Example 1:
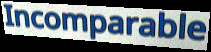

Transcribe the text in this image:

Incomparable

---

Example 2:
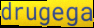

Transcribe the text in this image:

drugega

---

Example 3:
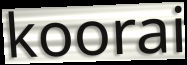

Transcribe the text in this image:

koorai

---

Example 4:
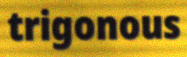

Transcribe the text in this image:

trigonous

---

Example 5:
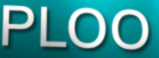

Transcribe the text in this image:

PLOO